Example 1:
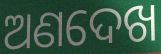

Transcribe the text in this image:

ଅଣଦେଖ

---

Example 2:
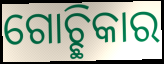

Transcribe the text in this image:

ଗୋଚ୍ଛିକାର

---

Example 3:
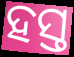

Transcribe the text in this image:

ହସ୍ତ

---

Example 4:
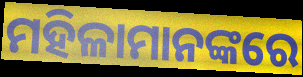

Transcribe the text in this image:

ମହିଳାମାନଙ୍କରେ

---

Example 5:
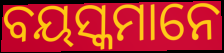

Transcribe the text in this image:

ବୟସ୍କମାନେ